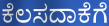
ಕೆಲಸದಾಕೆಗೆ